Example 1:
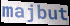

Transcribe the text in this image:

majbut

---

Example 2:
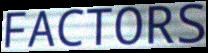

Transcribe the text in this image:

FACTORS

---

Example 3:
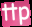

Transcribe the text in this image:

ttp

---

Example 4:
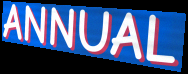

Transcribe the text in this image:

ANNUAL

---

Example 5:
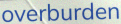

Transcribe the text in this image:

overburden